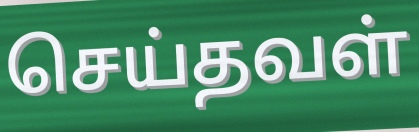
செய்தவள்